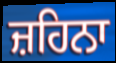
ਜ਼ਹਿਨਾ